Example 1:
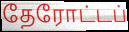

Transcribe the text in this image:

தேரோட்டப்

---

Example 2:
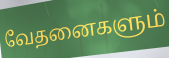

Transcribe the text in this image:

வேதனைகளும்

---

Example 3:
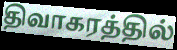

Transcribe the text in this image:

திவாகரத்தில்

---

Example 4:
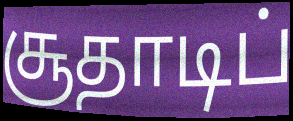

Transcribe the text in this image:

சூதாடிப்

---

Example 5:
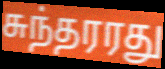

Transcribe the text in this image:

சுந்தரரது